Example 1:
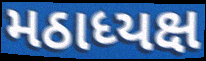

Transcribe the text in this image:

મઠાધ્યક્ષ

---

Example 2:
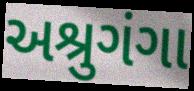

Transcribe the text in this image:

અશ્રુગંગા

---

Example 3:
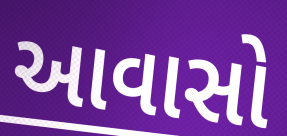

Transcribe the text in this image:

આવાસો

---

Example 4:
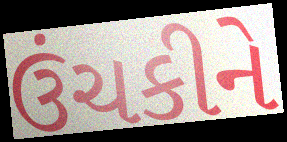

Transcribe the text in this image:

ઉંચકીને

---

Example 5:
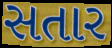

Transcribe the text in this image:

સતાર